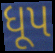
ધૂપ